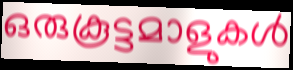
ഒരുകൂട്ടമാളുകൾ